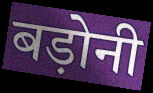
बड़ोनी